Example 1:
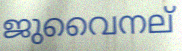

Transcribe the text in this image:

ജുവൈനല്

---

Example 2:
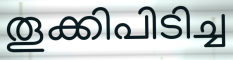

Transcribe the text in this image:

തൂക്കിപിടിച്ച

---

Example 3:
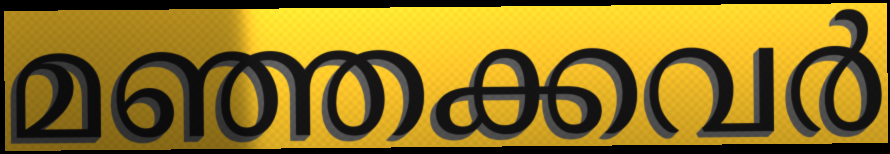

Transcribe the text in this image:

മഞ്ഞക്കവർ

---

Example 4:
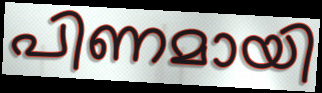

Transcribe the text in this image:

പിണമായി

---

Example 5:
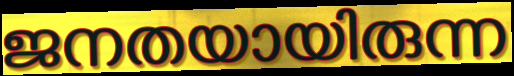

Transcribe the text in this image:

ജനതയായിരുന്ന